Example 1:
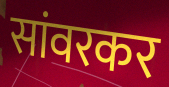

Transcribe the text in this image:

सांवरकर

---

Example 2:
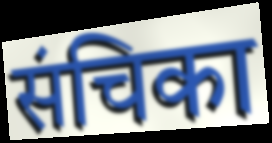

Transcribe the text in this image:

संचिका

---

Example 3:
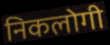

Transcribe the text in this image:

निकलोगी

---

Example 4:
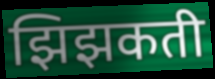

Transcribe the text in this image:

झिझकती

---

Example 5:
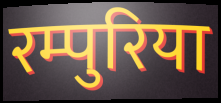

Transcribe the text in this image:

रम्पुरिया